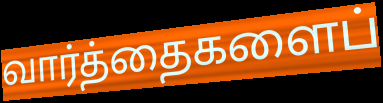
வார்த்தைகளைப்